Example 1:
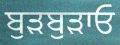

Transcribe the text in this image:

ਬੁੜਬੁੜਾਓ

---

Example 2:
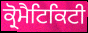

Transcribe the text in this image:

ਕ੍ਰੋਮੈਟਿਕਿਟੀ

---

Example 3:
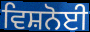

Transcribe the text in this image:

ਵਿਸ਼ਨੋਈ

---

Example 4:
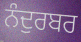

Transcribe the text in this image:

ਨੰਦੁਰਬਰ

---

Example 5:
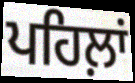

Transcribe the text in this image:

ਪਹਿਲ਼ਾਂ